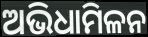
ଅଭିଧାମିଳନ